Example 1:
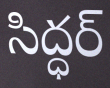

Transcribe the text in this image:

సిద్ధర్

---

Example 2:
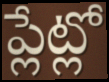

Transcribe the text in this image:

ప్లేట్లో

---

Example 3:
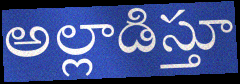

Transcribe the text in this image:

అల్లాడిస్తూ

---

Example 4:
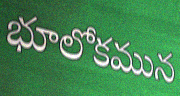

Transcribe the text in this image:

భూలోకమున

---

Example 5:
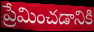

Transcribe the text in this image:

ప్రేమించడానికి